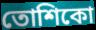
তোশিকো